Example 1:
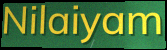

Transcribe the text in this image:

Nilaiyam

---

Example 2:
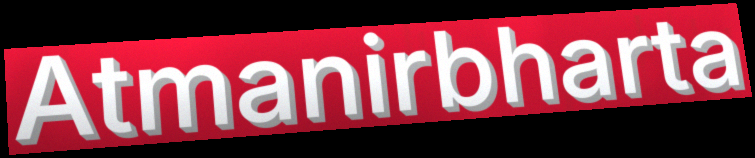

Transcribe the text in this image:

Atmanirbharta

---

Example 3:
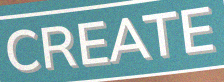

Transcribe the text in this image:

CREATE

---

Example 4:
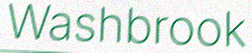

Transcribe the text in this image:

Washbrook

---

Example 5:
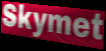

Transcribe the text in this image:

Skymet